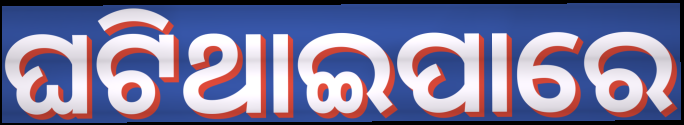
ଘଟିଥାଇପାରେ